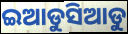
ଇଆଡୁସିଆଡୁ